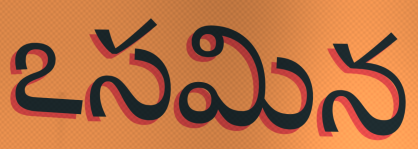
ఽసమిన